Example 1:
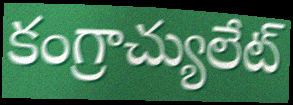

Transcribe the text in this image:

కంగ్రాచ్యులేట్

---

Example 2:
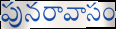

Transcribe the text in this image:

పునరావాసం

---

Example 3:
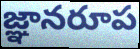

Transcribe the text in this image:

జ్ఞానరూప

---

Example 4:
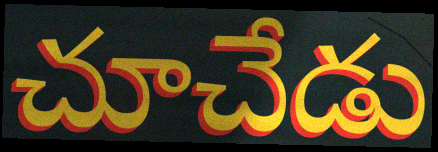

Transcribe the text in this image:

చూచేడు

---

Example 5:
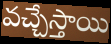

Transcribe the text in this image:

వచ్చేస్తాయి